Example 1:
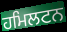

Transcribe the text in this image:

ਹਮਿਲਟਨ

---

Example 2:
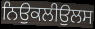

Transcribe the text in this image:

ਨਿਉਕਲੀਉਲਸ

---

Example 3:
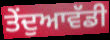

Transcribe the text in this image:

ਤੇਂਦੁਆਵੱਡੀ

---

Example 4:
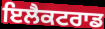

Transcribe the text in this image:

ਇਲੈਕਟਰਾਡ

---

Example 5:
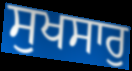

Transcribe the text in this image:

ਸੁਖਸਾਰੁ